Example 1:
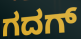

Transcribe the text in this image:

ಗದಗ್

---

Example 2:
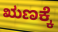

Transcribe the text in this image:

ಋಣಕ್ಕೆ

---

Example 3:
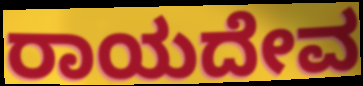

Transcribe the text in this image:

ರಾಯದೇವ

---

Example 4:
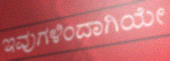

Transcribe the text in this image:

ಇವುಗಳಿಂದಾಗಿಯೇ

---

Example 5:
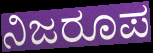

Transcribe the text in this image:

ನಿಜರೂಪ